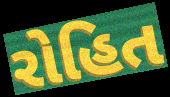
રોહિત